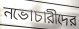
নভোচারীদের